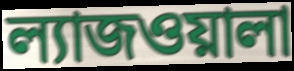
ল্যাজওয়ালা